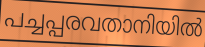
പച്ചപ്പരവതാനിയിൽ